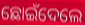
ଛୋଇଁଦେଲେ